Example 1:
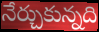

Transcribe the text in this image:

నేర్చుకున్నది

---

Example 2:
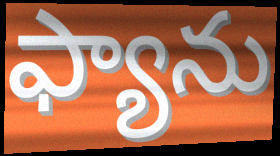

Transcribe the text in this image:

ఫ్యాను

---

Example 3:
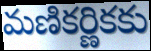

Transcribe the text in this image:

మణికర్ణికకు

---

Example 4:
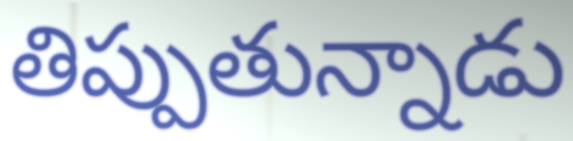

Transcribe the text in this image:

తిప్పుతున్నాడు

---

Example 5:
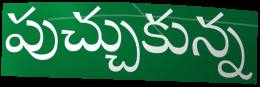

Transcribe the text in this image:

పుచ్చుకున్న